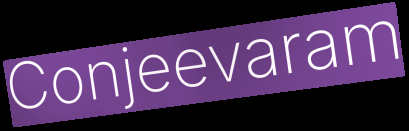
Conjeevaram